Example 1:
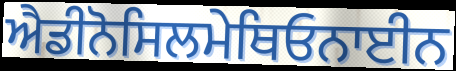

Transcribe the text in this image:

ਐਡੀਨੋਸਿਲਮੇਥਿਓਨਾਈਨ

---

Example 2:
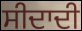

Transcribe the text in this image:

ਸੀਦਾਦੀ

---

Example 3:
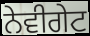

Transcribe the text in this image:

ਨੇਵੀਗੇਟ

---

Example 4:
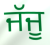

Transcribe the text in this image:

ਜੱਜੂ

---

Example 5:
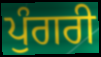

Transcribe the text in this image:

ਪੁੰਗਰੀ